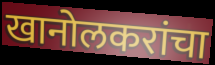
खानोलकरांचा